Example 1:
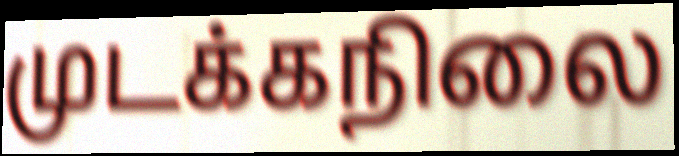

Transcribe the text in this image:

முடக்கநிலை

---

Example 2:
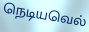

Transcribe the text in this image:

நெடியவெல்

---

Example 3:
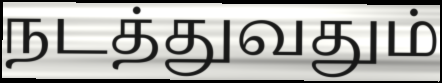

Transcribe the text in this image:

நடத்துவதும்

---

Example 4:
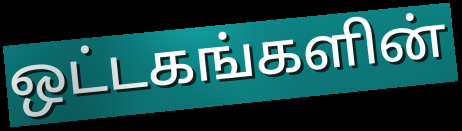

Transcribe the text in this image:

ஒட்டகங்களின்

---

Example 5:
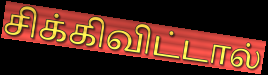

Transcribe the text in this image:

சிக்கிவிட்டால்